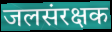
जलसंरक्षक